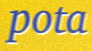
pota